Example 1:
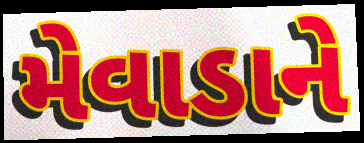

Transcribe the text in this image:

મેવાડાને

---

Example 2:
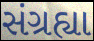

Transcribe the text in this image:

સંગ્રહ્યા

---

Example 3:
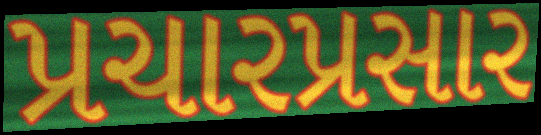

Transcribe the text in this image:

પ્રચારપ્રસાર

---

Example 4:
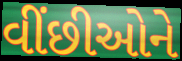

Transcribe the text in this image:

વીંછીઓને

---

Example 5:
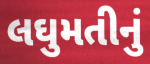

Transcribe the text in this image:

લઘુમતીનું